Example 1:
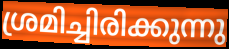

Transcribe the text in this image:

ശ്രമിച്ചിരിക്കുന്നു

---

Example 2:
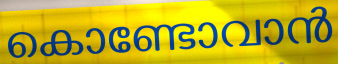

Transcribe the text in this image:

കൊണ്ടോവാൻ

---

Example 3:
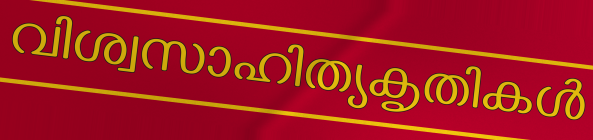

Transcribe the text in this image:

വിശ്വസാഹിത്യകൃതികൾ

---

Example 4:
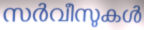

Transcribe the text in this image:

സർവീസുകൾ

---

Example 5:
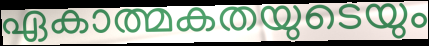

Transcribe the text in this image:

ഏകാത്മകതയുടെയും